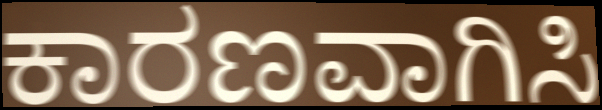
ಕಾರಣವಾಗಿಸಿ